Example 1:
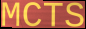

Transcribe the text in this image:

MCTS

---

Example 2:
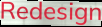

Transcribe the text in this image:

Redesign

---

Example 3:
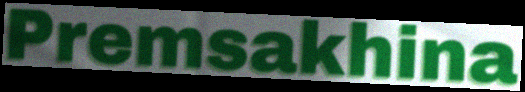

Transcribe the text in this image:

Premsakhina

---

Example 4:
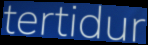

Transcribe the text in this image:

tertidur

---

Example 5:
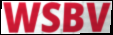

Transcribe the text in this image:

WSBV